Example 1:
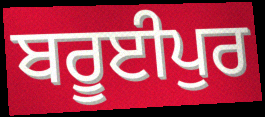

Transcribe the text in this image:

ਬਰੂਈਪੁਰ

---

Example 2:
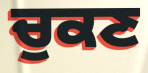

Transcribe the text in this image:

ਚੁਕਣ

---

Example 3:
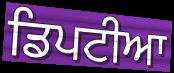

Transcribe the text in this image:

ਡਿਪਟੀਆ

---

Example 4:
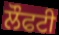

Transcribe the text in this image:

ਲੌਫਟੀ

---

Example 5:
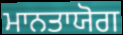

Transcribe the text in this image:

ਮਾਨਤਾਯੋਗ